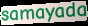
samayada